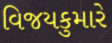
વિજયકુમારે